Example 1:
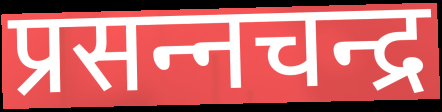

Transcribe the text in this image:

प्रसन्नचन्द्र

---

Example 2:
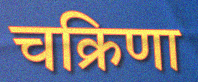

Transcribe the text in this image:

चक्रिणा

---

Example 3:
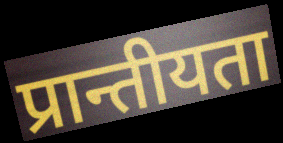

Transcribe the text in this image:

प्रान्तीयता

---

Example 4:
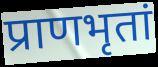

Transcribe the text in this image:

प्राणभृतां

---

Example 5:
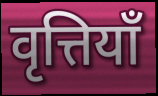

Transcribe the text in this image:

वृत्तियाँ